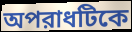
অপরাধটিকে